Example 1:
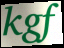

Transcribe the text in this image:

kgf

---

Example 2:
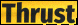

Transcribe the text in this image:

Thrust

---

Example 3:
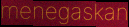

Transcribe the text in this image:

menegaskan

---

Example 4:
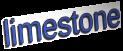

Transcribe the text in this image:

limestone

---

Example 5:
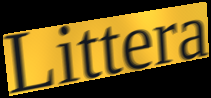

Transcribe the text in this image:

Littera